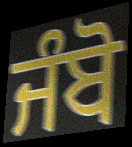
ਜੰਬੋ